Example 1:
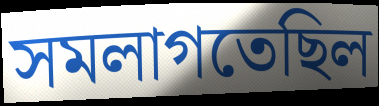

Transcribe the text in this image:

সমলাগতেছিল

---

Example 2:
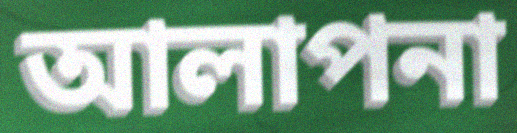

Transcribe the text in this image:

আলাপনা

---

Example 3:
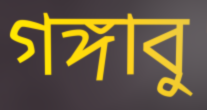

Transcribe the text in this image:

গঙ্গাবু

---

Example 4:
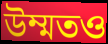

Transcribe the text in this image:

উম্মতও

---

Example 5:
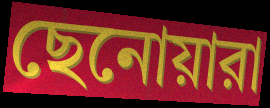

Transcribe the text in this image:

ছেনোয়ারা